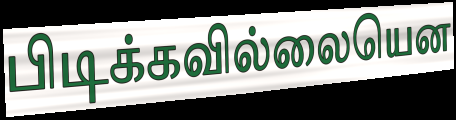
பிடிக்கவில்லையென